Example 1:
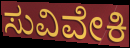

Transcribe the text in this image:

ಸುವಿವೇಕಿ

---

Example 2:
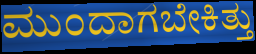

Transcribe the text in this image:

ಮುಂದಾಗಬೇಕಿತ್ತು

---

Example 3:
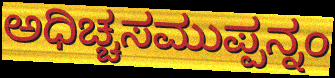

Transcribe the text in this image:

ಅಧಿಚ್ಚಸಮುಪ್ಪನ್ನಂ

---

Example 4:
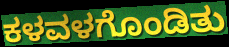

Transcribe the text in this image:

ಕಳವಳಗೊಂಡಿತು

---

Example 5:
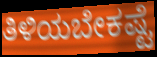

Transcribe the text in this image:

ತಿಳಿಯಬೇಕಷ್ಟೆ